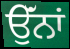
ਉਂੱਨਾਂ